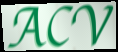
ACV